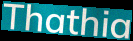
Thathia